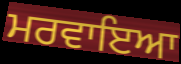
ਮਰਵਾਇਆ